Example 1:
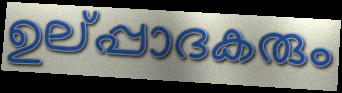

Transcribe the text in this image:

ഉല്പ്പാദകരും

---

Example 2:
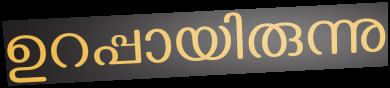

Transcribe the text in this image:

ഉറപ്പായിരുന്നു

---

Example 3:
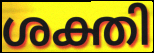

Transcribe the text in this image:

ശക്തി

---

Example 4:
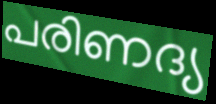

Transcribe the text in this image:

പരിണദ്യ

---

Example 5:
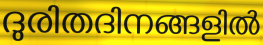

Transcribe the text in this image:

ദുരിതദിനങ്ങളിൽ